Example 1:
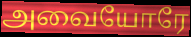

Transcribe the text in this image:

அவையோரே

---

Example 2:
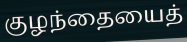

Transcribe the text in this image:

குழந்தையைத்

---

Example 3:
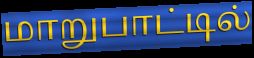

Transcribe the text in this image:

மாறுபாட்டில்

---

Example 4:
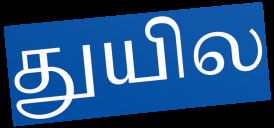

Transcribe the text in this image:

துயில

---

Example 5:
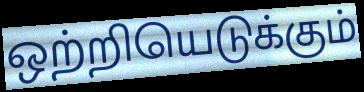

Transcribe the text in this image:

ஒற்றியெடுக்கும்